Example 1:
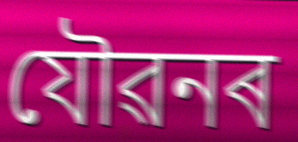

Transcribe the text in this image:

যৌৱনৰ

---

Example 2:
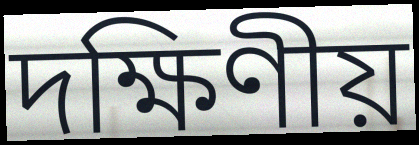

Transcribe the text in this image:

দক্ষিণীয়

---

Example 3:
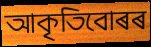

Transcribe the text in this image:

আকৃতিবোৰৰ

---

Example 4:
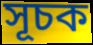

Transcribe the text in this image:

সূচক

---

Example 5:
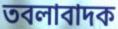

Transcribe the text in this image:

তবলাবাদক